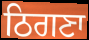
ਠਿਗਣਾ